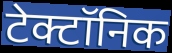
टेक्टॉनिक